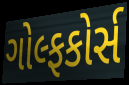
ગોલ્ફકોર્સ